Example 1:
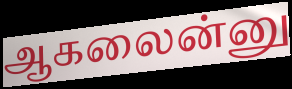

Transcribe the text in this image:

ஆகலைன்னு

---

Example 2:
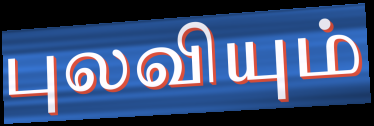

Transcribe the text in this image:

புலவியும்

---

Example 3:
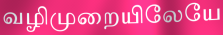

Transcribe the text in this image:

வழிமுறையிலேயே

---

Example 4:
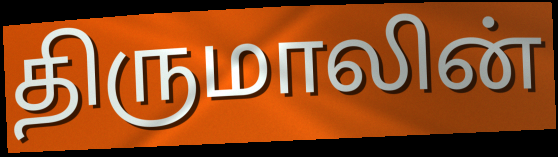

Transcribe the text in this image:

திருமாலின்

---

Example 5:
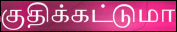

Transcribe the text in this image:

குதிக்கட்டுமா